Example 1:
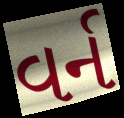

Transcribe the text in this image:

વર્ન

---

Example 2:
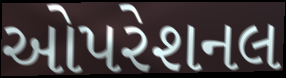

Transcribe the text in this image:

ઓપરેશનલ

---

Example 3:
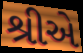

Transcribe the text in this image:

શ્રીએ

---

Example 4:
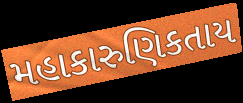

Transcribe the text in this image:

મહાકારુણિકતાય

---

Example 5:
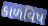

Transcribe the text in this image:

કાળવિષ